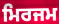
ਮਿਰਜਮ